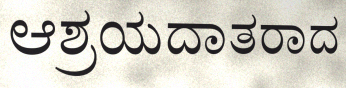
ಆಶ್ರಯದಾತರಾದ